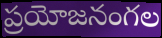
ప్రయోజనంగల